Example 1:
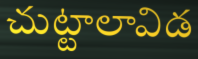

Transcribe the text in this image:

చుట్టాలావిడ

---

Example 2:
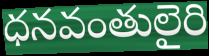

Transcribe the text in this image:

ధనవంతులైరి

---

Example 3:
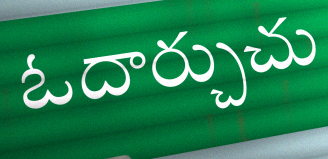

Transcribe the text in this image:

ఓదార్చుచు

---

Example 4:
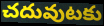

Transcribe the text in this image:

చదువుటకు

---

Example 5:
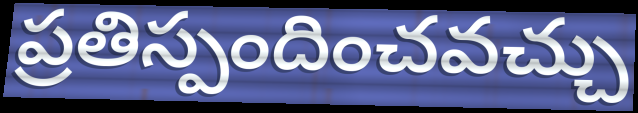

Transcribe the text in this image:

ప్రతిస్పందించవచ్చు